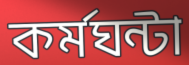
কর্মঘন্টা